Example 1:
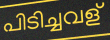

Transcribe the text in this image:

പിടിച്ചവള്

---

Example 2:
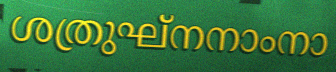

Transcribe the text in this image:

ശത്രുഘ്നനാംനാ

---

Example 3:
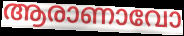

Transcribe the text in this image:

ആരാണാവോ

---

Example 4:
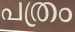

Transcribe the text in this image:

പത്രം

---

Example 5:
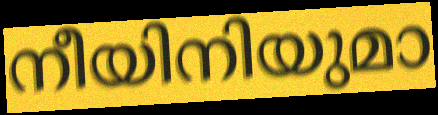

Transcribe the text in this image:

നീയിനിയുമാ